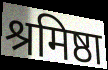
श्रमिष्ठा